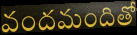
వందమందితో